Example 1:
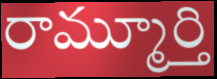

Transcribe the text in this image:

రామ్మూర్తి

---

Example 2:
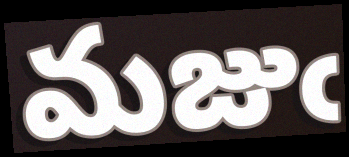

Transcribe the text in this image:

మజుఁ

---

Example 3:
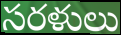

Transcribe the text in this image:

సరళులు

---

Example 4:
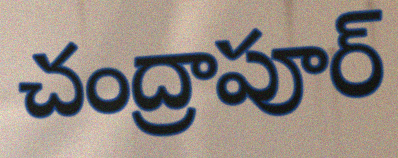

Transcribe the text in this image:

చంద్రాపూర్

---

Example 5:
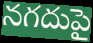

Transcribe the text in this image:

నగదుపై